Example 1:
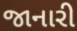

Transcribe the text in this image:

જાનારી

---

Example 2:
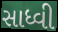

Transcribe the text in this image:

સાધ્વી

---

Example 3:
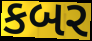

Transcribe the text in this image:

કબર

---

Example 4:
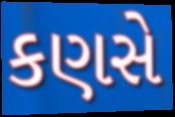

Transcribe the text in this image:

કણસે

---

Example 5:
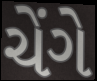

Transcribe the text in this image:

ચેંગે